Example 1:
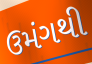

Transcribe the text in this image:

ઉમંગથી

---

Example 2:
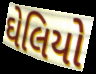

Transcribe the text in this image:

ઘેલિયો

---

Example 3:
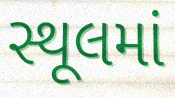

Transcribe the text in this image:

સ્થૂલમાં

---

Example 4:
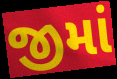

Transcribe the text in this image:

જીમાં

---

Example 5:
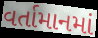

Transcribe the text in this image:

વર્તામાનમાં